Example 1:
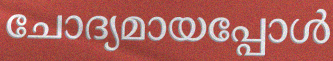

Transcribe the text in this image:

ചോദ്യമായപ്പോൾ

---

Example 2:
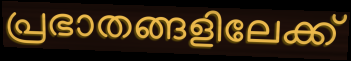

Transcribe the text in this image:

പ്രഭാതങ്ങളിലേക്ക്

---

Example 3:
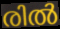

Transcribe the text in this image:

രിൽ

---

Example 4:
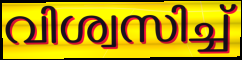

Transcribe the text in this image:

വിശ്വസിച്ച്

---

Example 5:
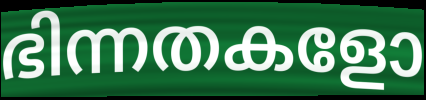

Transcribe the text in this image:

ഭിന്നതകളോ